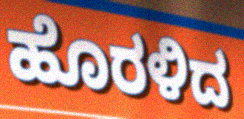
ಹೊರಳಿದ